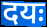
दयः